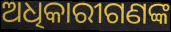
ଅଧିକାରୀଗଣଙ୍କ